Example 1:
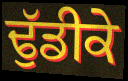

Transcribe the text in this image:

ਢੁੱਡੀਕੇ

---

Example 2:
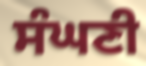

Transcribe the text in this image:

ਸੰਘਣੀ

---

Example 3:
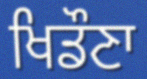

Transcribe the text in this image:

ਖਿਡੌਣਾ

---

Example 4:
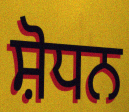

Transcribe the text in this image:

ਸ਼ੋਧਨ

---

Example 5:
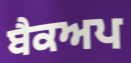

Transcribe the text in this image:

ਬੈਕਅਪ